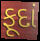
ફૂદાં